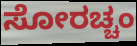
ಸೋರಚ್ಚಂ